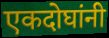
एकदोघांनी